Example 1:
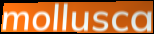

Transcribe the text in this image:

mollusca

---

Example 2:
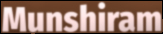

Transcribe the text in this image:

Munshiram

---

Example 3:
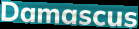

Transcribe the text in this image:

Damascus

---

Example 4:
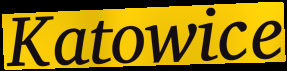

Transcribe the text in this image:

Katowice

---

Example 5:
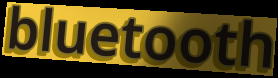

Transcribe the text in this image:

bluetooth